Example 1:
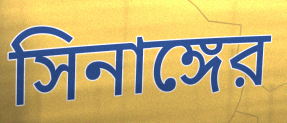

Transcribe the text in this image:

সিনাঙ্গের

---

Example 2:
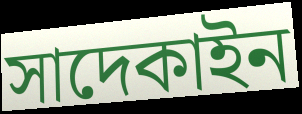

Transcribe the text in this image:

সাদেকাইন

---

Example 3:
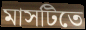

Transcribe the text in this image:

মাসটিতে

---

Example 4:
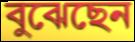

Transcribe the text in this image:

বুঝেছেন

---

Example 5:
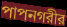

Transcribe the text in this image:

পাপনগরীর